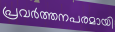
പ്രവർത്തനപരമായി